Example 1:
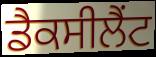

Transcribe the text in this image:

ਡੈਕਸੀਲੈਂਟ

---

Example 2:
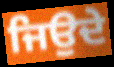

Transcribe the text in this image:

ਜਿਉਦੇ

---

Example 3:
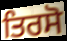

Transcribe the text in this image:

ਤਿਰਸੋ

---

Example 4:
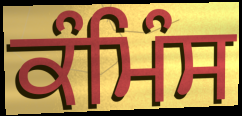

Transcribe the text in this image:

ਕੰਮਿੰਸ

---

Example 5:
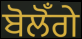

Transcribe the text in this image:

ਬੋਲੋਁਗੇ